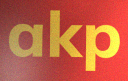
akp